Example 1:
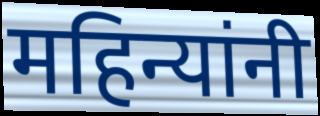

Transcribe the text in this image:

महिन्यांनी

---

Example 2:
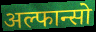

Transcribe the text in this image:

अल्फान्सो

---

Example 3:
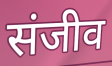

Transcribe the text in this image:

संजीव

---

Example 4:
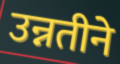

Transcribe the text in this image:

उन्नतीने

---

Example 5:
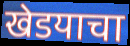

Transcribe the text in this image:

खेडयाचा